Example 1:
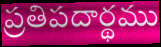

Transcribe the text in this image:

ప్రతిపదార్థము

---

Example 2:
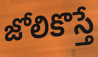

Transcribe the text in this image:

జోలికొస్తే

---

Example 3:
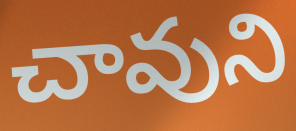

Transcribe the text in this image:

చావుని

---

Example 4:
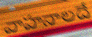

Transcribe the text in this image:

వాహనాలదే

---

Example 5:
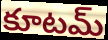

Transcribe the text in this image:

కూటమ్